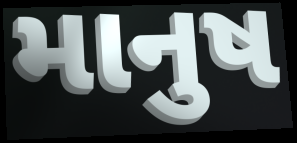
માનુષ